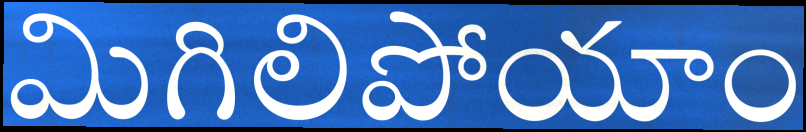
మిగిలిపోయాం